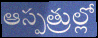
ఆస్పత్రుల్లో